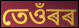
তেওঁৰৰ